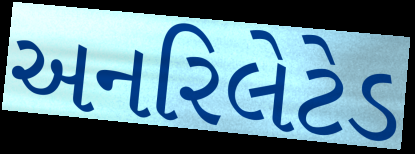
અનરિલેટેડ